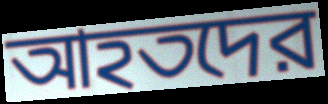
আহতদের